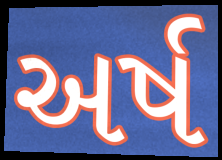
અર્ષ